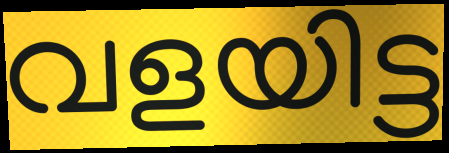
വളയിട്ട